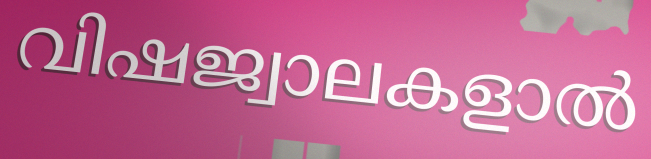
വിഷജ്വാലകളാൽ